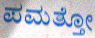
ಪಮತ್ತೋ